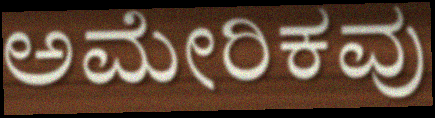
ಅಮೇರಿಕವು